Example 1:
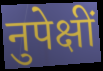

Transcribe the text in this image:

नुपेक्षीं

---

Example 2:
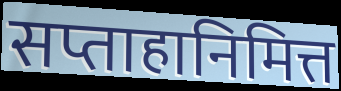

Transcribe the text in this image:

सप्ताहानिमित्त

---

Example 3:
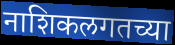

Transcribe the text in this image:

नाशिकलगतच्या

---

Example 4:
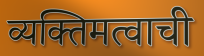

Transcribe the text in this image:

व्यक्तिमत्वाची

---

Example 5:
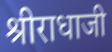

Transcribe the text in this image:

श्रीराधाजी